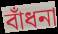
বাঁধনা